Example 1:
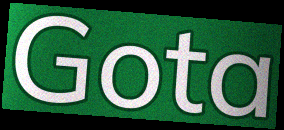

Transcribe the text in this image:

Gota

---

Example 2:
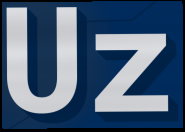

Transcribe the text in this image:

Uz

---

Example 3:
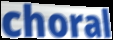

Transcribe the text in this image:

choral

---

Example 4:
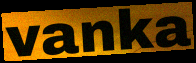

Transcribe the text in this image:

vanka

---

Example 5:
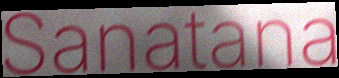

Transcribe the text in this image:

Sanatana